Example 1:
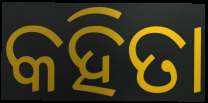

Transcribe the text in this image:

କହିତା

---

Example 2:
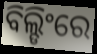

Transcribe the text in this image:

ବିଲ୍ଡିଂରେ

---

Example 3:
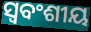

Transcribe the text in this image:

ସ୍ଵବଂଶୀୟ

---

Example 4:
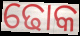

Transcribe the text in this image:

ଢୋକ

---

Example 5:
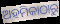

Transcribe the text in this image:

ଅହମିକାଠାରୁ